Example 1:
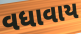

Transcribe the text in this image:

વધાવાય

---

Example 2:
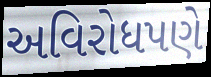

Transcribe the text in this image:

અવિરોધપણે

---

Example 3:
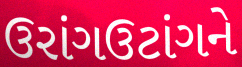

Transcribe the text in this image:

ઉરાંગઉટાંગને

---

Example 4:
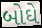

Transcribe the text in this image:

બોઘે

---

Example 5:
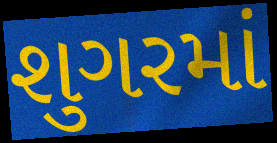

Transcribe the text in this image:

શુગરમાં